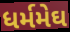
ધર્મમેઘ